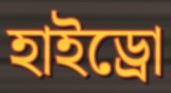
হাইড্রো